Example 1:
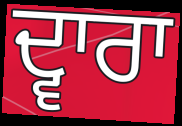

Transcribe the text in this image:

ਦ੍ਵਾਰਾ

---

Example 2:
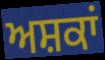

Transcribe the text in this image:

ਅਸ਼ਕਾਂ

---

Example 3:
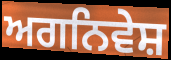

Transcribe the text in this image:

ਅਗਨਿਵੇਸ਼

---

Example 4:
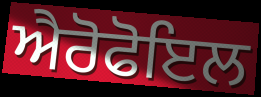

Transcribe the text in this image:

ਐਰੋਫੋਇਲ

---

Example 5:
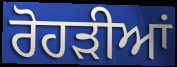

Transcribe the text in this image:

ਰੋਹੜੀਆਂ